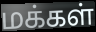
மக்கள்